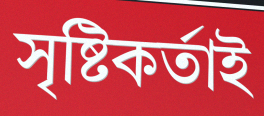
সৃষ্টিকৰ্তাই